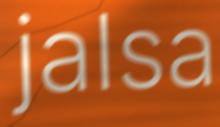
jalsa